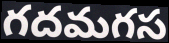
గదమగస